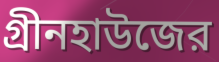
গ্রীনহাউজের